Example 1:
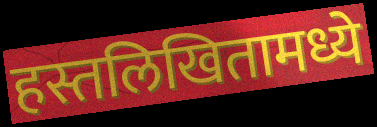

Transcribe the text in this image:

हस्तलिखितामध्ये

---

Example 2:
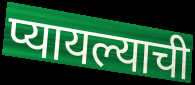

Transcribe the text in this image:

प्यायल्याची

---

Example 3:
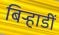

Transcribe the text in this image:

बिर्‍हाडीं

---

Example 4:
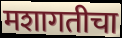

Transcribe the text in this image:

मशागतीचा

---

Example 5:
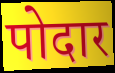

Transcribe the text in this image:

पोदार